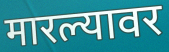
मारल्यावर